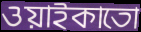
ওয়াইকাতো